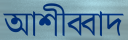
আশীব্বাদ